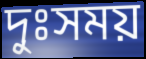
দুঃসময়